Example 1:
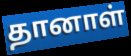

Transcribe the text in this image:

தானாள்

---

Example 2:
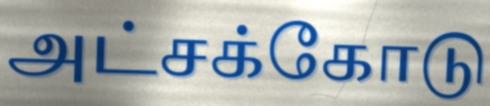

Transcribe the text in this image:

அட்சக்கோடு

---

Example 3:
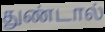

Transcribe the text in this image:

துண்டால்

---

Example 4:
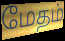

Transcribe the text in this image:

மேதம்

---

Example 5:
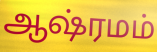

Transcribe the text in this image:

ஆஷ்ரமம்